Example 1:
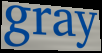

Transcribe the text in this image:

gray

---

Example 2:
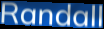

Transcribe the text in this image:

Randall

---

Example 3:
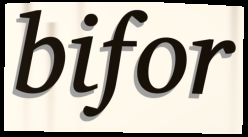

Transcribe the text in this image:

bifor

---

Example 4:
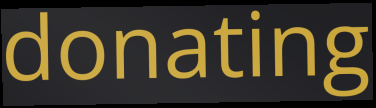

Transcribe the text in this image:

donating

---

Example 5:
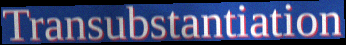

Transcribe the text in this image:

Transubstantiation